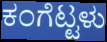
ಕಂಗೆಟ್ಟಳು